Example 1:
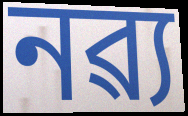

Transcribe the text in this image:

নৱ্য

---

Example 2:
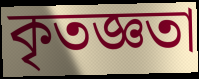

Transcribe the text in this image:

কৃতজ্ঞতা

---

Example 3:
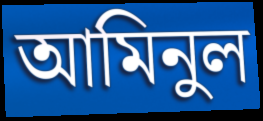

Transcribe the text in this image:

আমিনুল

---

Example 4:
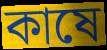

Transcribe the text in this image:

কাষে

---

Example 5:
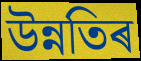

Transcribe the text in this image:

উন্নতিৰ